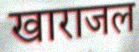
खाराजल